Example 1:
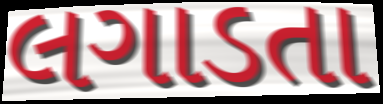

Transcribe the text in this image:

લગાડતા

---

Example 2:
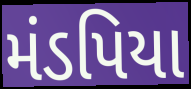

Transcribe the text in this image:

મંડપિયા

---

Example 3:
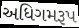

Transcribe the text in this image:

અધિગમરૂપ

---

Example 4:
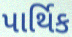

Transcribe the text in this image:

પાર્થિક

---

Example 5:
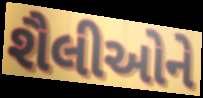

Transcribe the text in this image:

શૈલીઓને